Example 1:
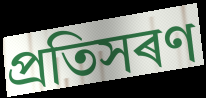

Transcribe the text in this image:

প্ৰতিসৰণ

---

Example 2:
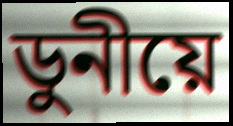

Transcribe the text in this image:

ডুনীয়ে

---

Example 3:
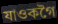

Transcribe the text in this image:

যাওকগৈ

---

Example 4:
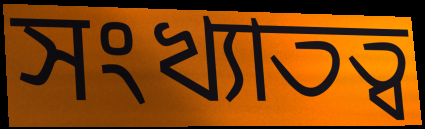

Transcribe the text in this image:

সংখ্যাতত্ব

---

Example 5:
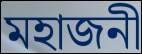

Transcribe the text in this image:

মহাজনী